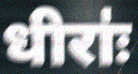
धीराः॑